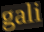
gali